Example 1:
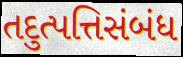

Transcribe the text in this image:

તદુત્પત્તિસંબંધ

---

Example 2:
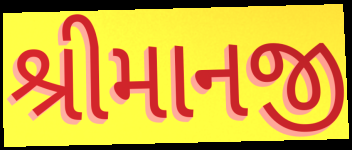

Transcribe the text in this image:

શ્રીમાનજી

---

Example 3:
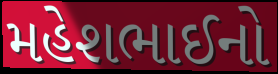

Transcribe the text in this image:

મહેશભાઈનો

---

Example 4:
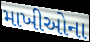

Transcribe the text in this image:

માખીઓના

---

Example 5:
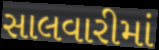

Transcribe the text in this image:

સાલવારીમાં